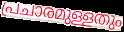
പ്രചാരമുള്ളതും